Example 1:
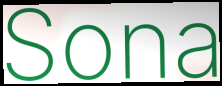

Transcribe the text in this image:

Sona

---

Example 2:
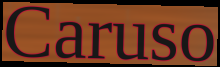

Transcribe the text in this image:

Caruso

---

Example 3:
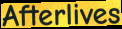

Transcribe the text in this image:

Afterlives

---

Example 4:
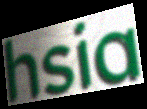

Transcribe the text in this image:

hsia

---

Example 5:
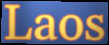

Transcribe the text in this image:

Laos